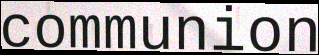
communion